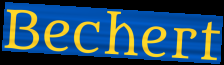
Bechert